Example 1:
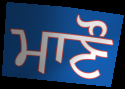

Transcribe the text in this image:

ਮਾਣੌ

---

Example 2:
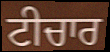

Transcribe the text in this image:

ਟੀਚਾਰ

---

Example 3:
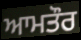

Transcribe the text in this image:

ਆਮਤੌਰ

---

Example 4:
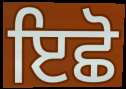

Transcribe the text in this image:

ਇਛੋ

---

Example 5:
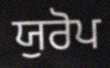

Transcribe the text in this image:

ਯੁਰੋਪ